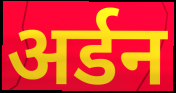
अर्डन